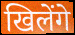
खिलेंगे